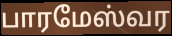
பாரமேஸ்வர